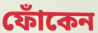
ফোঁকেন